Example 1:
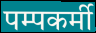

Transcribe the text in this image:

पम्पकर्मी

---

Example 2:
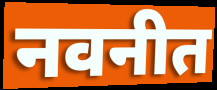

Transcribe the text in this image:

नवनीत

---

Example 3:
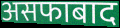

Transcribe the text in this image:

असफाबाद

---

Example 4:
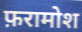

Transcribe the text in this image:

फ़रामोश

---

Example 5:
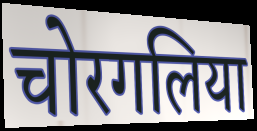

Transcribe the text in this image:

चोरगलिया